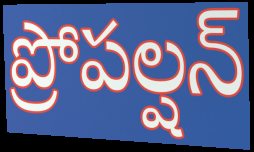
ప్రోపల్షన్